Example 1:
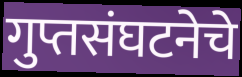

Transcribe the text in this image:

गुप्तसंघटनेचे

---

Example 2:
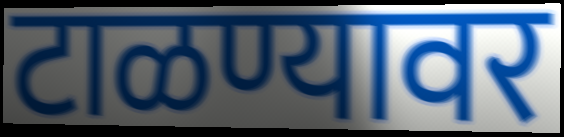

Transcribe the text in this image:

टाळण्यावर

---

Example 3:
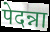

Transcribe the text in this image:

पेदन्ना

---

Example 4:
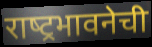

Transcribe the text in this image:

राष्ट्रभावनेची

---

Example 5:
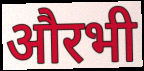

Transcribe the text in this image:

औरभी